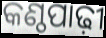
କଣ୍ଠପାଢ଼ୀ